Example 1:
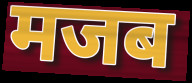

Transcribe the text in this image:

मजब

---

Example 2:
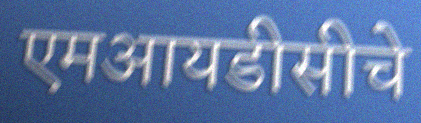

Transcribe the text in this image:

एमआयडीसीचे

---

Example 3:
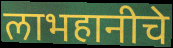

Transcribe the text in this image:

लाभहानीचे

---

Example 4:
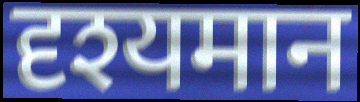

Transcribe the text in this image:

दृश्यमान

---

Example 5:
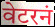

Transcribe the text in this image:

वेटरनं